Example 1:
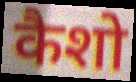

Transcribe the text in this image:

कैशो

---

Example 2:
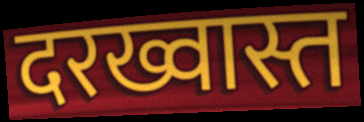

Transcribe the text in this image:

दरख्वास्त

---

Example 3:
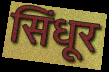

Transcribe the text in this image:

सिंधूर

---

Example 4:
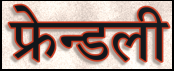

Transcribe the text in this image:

फ्रेन्डली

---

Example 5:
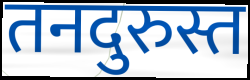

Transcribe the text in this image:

तनदुरुस्त